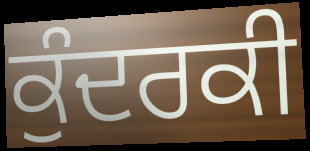
ਕੁੰਦਰਕੀ